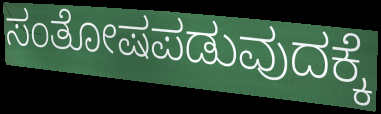
ಸಂತೋಷಪಡುವುದಕ್ಕೆ